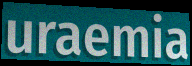
uraemia